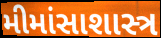
મીમાંસાશાસ્ત્ર